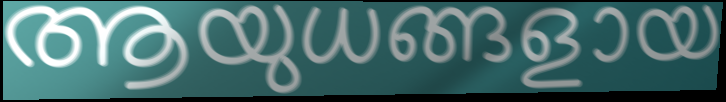
ആയുധങ്ങളായ